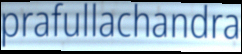
prafullachandra